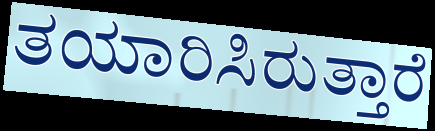
ತಯಾರಿಸಿರುತ್ತಾರೆ